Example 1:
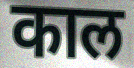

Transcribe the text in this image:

काल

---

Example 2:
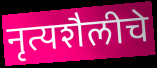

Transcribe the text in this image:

नृत्यशैलीचे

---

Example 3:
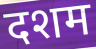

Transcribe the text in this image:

दशम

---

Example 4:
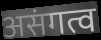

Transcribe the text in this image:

असंगत्व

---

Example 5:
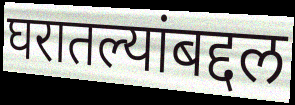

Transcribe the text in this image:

घरातल्यांबद्दल